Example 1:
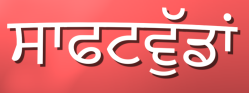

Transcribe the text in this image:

ਸਾਫਟਵੁੱਡਾਂ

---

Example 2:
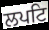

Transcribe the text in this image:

ਲਪਟਿ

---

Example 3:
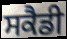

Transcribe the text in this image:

ਸਕੈਡੀ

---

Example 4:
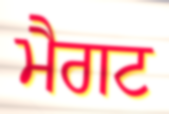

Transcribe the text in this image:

ਮੈਗਟ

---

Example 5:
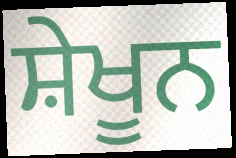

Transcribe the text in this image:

ਸ਼ੇਖੂਨ